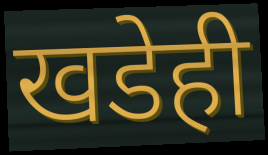
खडेही